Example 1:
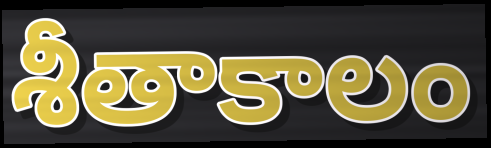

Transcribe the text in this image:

శీతాకాలం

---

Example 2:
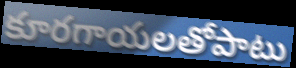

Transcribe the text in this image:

కూరగాయలతోపాటు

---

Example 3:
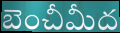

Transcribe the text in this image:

బెంచీమీద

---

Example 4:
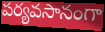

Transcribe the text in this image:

పర్యవసానంగా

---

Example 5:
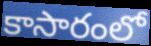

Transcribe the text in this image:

కాసారంలో